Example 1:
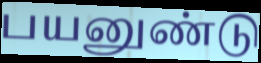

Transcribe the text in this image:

பயனுண்டு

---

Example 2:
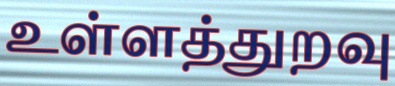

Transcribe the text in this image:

உள்ளத்துறவு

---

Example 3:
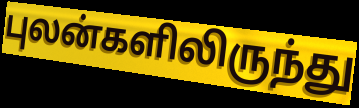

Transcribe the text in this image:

புலன்களிலிருந்து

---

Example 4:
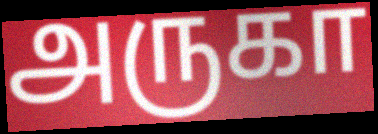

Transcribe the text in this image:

அருகா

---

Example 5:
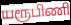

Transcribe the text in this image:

யரூபிணி